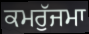
ਕਮਰੁੱਜਮਾ